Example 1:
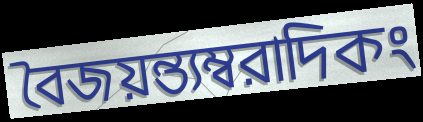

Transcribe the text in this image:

বৈজয়ন্ত্যম্বরাদিকং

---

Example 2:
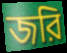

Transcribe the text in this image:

জরি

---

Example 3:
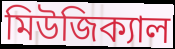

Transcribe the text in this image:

মিউজিক্যাল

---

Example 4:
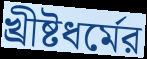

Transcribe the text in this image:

খ্রীষ্টধর্মের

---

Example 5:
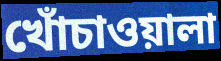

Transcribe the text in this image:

খোঁচাওয়ালা